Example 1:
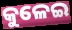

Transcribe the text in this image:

କୁଳେଇ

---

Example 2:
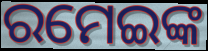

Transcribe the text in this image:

ରମେଇଙ୍କ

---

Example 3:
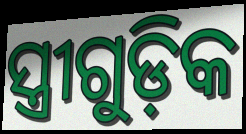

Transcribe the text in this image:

ସ୍ତ୍ରୀଗୁଡ଼ିକ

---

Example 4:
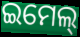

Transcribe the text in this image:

ଇମେଲ୍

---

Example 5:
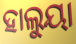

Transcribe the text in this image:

ହାଲୁୟା